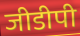
जीडीपी